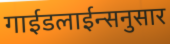
गाईडलाईन्सनुसार